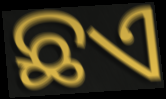
ଛଏ